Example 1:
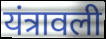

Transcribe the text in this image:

यंत्रावली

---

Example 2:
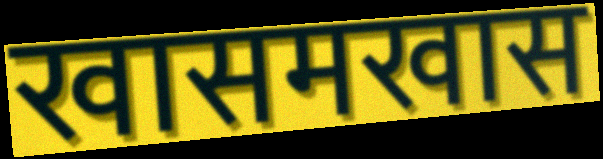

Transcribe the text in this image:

खासमखास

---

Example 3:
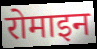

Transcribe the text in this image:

रोमाइन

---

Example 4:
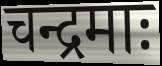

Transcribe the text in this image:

चन्द्रमाः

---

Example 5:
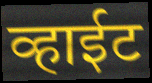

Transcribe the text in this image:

व्हाईट